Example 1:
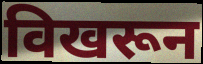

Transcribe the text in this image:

विखरून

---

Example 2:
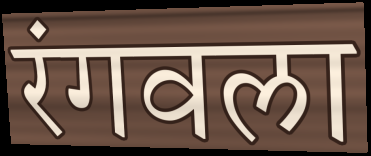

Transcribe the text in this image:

रंगवला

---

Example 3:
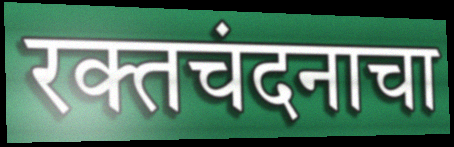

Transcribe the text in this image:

रक्तचंदनाचा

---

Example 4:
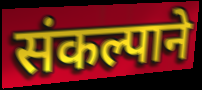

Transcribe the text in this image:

संकल्पाने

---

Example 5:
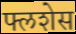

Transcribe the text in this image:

फ्लशेस